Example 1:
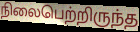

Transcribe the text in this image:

நிலைபெற்றிருந்த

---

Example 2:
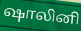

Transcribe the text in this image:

ஷாலினி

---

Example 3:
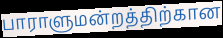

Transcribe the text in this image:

பாராளுமன்றத்திற்கான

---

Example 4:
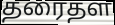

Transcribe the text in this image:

தரைதள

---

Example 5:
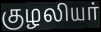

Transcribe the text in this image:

குழலியர்